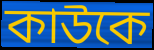
কাউকে